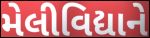
મેલીવિદ્યાને